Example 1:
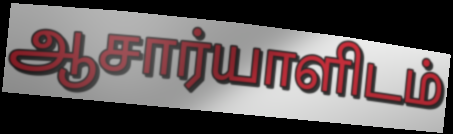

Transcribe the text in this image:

ஆசார்யாளிடம்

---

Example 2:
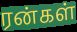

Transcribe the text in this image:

ரன்கள்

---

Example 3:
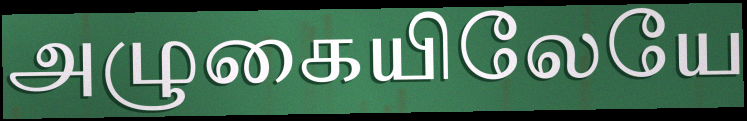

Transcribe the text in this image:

அழுகையிலேயே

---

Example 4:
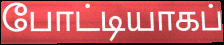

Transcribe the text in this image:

போட்டியாகப்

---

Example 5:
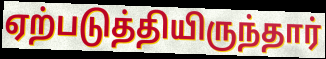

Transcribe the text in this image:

ஏற்படுத்தியிருந்தார்